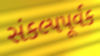
સંકલ્પપૂર્વક